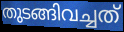
തുടങ്ങിവച്ചത്